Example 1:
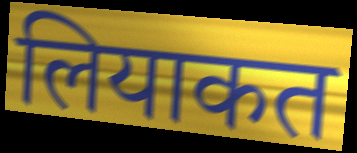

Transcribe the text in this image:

लियाकत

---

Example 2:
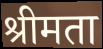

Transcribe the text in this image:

श्रीमता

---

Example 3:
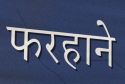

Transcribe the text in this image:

फरहाने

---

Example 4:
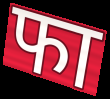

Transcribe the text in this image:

फा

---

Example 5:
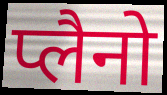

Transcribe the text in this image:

प्लैनो